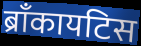
ब्राँकायटिस